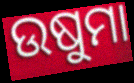
ଉଷୁମା